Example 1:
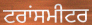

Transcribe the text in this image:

ਟਰਾਂਸਮੀਟਰ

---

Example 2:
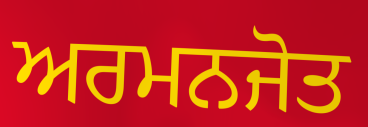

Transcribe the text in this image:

ਅਰਮਨਜੋਤ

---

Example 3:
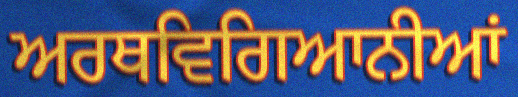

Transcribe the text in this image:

ਅਰਥਵਿਗਿਆਨੀਆਂ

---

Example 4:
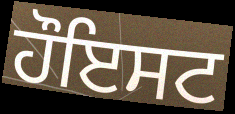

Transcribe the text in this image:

ਹੌਇਸਟ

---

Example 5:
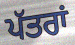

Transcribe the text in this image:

ਪੱਤਰਾਂ